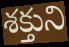
శక్తుని